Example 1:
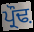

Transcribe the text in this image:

ਪ੍ਰੌਢ਼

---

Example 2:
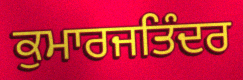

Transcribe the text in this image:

ਕੁਮਾਰਜਤਿੰਦਰ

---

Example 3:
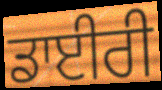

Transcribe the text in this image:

ਡਾਈਰੀ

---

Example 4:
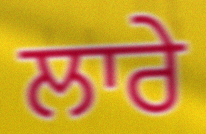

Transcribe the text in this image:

ਲਾਰੇ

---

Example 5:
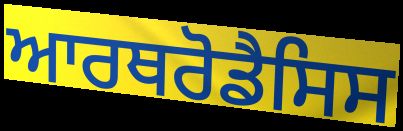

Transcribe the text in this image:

ਆਰਥਰੋਡੈਸਿਸ